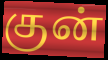
குன்